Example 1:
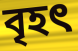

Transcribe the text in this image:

বৃহৎ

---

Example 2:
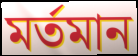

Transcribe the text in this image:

মর্তমান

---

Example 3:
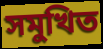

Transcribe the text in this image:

সমুখিত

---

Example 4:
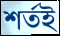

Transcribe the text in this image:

শর্তই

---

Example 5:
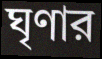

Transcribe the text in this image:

ঘৃণার